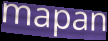
mapan